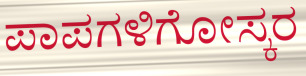
ಪಾಪಗಳಿಗೋಸ್ಕರ